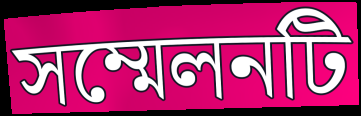
সম্মেলনটি